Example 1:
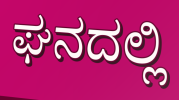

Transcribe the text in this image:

ಘನದಲ್ಲಿ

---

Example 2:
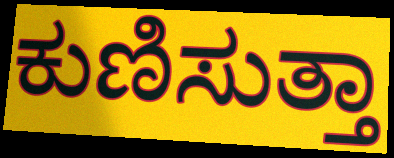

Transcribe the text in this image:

ಕುಣಿಸುತ್ತಾ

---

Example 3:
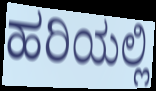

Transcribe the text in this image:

ಹರಿಯಲ್ಲಿ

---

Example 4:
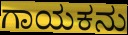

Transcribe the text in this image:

ಗಾಯಕನು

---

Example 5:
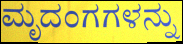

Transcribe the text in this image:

ಮೃದಂಗಗಳನ್ನು